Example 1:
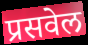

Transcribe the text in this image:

प्रसवेल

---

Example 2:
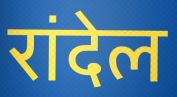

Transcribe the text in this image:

रांदेल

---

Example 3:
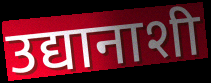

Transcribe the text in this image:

उद्यानाशी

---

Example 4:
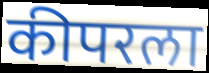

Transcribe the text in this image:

कीपरला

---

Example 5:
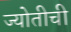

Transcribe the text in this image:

ज्योतीची